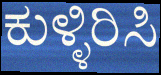
ಕುಳ್ಳಿರಿಸಿ